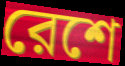
রেশে